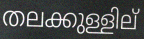
തലക്കുള്ളില്